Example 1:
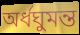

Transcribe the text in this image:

অর্ধঘুমন্ত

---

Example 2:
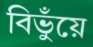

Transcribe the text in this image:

বিভুঁয়ে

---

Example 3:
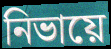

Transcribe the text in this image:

নিভায়ে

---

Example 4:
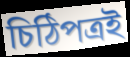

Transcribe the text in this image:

চিঠিপত্রই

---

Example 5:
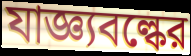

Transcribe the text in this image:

যাজ্ঞ্যবল্কের